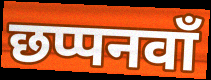
छप्पनवाँ